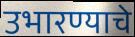
उभारण्याचे